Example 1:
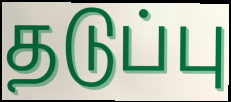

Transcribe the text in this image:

தடுப்பு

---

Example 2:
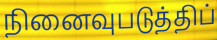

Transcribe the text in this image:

நினைவுபடுத்திப்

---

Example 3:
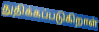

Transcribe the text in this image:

துதிக்கப்படுகிறாள்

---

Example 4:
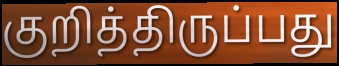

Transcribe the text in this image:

குறித்திருப்பது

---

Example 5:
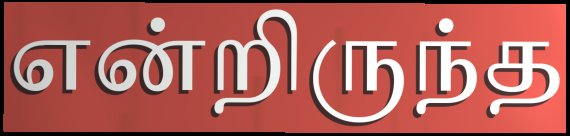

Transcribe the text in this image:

என்றிருந்த